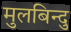
मुलबिन्दु